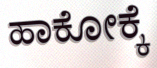
ಹಾಕೋಕ್ಕೆ